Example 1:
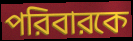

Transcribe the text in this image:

পরিবারকে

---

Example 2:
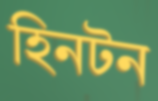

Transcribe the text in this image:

হিনটন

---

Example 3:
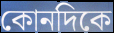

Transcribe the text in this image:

কোনদিকে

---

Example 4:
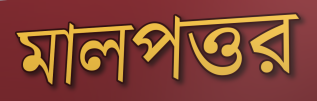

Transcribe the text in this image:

মালপত্তর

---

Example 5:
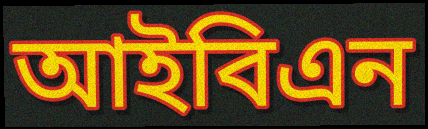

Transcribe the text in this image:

আইবিএন